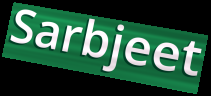
Sarbjeet